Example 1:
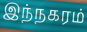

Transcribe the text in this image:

இந்நகரம்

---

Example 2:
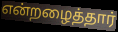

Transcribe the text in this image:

என்றழைத்தார்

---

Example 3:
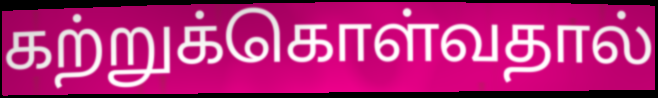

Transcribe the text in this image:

கற்றுக்கொள்வதால்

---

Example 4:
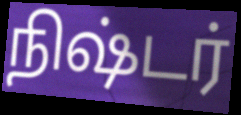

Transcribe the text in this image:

நிஷ்டர்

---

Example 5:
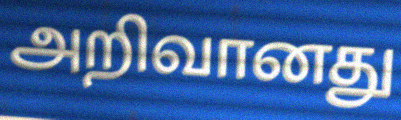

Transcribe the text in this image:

அறிவானது